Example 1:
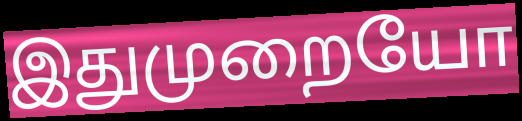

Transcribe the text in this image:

இதுமுறையோ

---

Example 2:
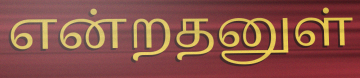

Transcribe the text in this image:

என்றதனுள்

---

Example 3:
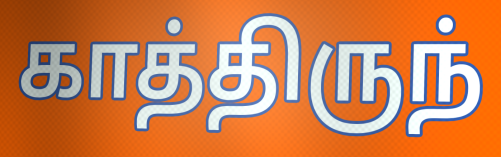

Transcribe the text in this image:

காத்திருந்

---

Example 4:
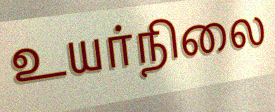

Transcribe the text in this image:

உயர்நிலை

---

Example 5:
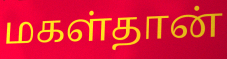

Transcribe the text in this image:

மகள்தான்